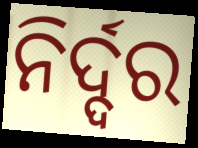
ନିର୍ଦ୍ଦର